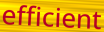
efficient